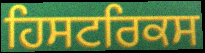
ਹਿਸਟਰਿਕਸ